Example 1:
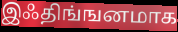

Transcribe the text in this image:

இஃதிங்ஙனமாக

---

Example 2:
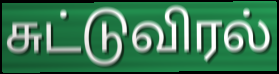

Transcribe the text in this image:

சுட்டுவிரல்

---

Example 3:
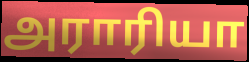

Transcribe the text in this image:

அராரியா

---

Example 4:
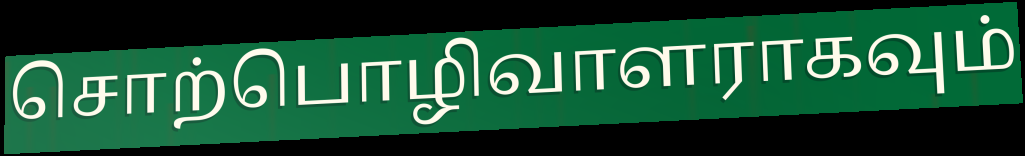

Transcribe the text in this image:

சொற்பொழிவாளராகவும்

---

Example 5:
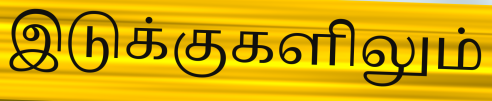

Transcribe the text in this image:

இடுக்குகளிலும்